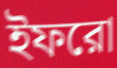
ইফরো